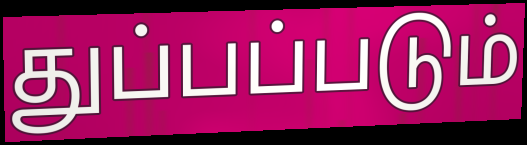
துப்பப்படும்